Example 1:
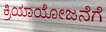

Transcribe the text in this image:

ಕ್ರಿಯಾಯೋಜನೆಗೆ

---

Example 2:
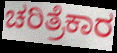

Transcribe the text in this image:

ಚರಿತ್ರೆಕಾರ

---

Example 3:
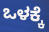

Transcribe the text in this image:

ಒಳಕ್ಕೆ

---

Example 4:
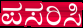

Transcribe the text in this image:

ಪಸರಿಸಿ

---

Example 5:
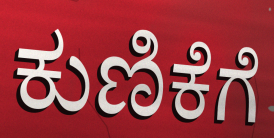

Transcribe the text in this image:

ಕುಣಿಕೆಗೆ